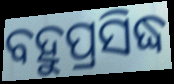
ବହୁପ୍ରସିଦ୍ଧ